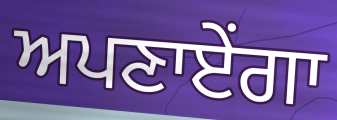
ਅਪਣਾਏਂਗਾ